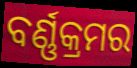
ବର୍ଣ୍ଣକ୍ରମର